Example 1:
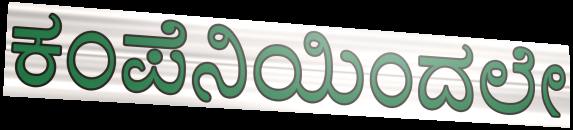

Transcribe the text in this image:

ಕಂಪೆನಿಯಿಂದಲೇ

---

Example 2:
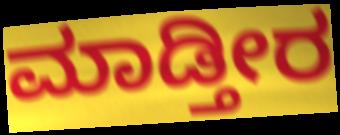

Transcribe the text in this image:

ಮಾಡ್ತೀರ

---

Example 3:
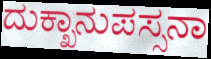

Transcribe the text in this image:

ದುಕ್ಖಾನುಪಸ್ಸನಾ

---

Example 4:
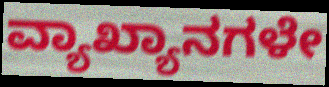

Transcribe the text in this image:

ವ್ಯಾಖ್ಯಾನಗಳೇ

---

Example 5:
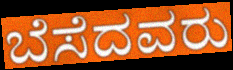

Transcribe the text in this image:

ಬೆಸೆದವರು